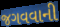
જગવવાની